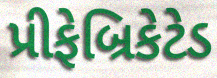
પ્રીફેબ્રિકેટેડ